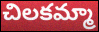
చిలకమ్మా